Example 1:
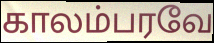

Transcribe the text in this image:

காலம்பரவே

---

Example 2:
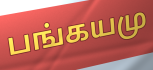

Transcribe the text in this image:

பங்கயமு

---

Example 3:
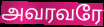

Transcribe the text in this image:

அவரவரே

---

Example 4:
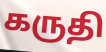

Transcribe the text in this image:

கருதி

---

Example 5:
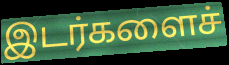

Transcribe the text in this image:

இடர்களைச்